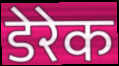
डेरेक